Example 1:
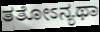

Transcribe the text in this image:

ತತೋಽನ್ಯಥಾ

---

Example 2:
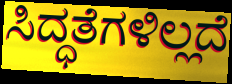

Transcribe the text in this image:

ಸಿದ್ಧತೆಗಳಿಲ್ಲದೆ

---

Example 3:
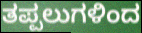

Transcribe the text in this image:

ತಪ್ಪಲುಗಳಿಂದ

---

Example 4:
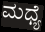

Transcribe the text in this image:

ಮಧ್ಯೆ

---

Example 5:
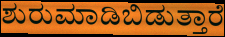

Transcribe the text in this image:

ಶುರುಮಾಡಿಬಿಡುತ್ತಾರೆ